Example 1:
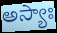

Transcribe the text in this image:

అస్యాః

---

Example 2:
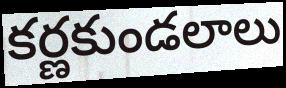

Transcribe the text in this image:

కర్ణకుండలాలు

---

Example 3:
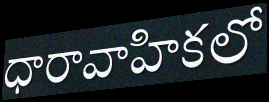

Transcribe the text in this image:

ధారావాహికలో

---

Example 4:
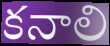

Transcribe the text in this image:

కనాలి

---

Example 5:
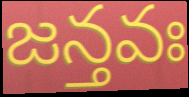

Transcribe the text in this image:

జన్తవః